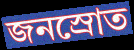
জনস্রোত